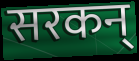
सरकन्